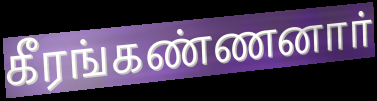
கீரங்கண்ணனார்